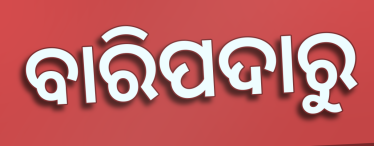
ବାରିପଦାରୁ